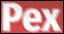
Pex